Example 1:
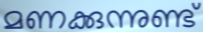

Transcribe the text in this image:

മണക്കുന്നുണ്ട്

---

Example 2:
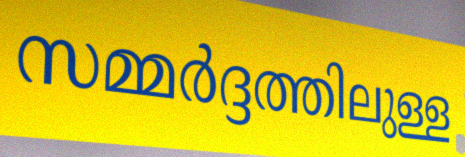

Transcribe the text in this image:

സമ്മർദ്ദത്തിലുള്ള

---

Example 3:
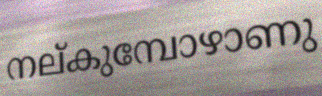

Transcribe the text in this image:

നല്കുമ്പോഴാണു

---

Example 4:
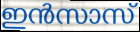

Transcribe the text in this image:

ഇൻസാസ്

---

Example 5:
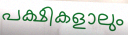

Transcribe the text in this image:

പക്ഷികളാലും